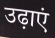
उढ़ाएं